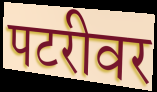
पटरीवर